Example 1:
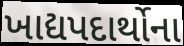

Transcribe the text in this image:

ખાદ્યપદાર્થોના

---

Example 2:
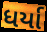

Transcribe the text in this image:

ધર્યા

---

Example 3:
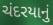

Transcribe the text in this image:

ચંદરયાનું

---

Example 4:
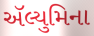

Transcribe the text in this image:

ઍલ્યુમિના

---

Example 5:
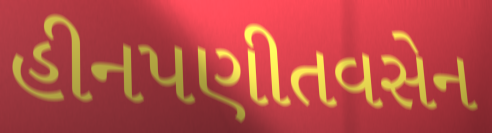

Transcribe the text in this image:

હીનપણીતવસેન